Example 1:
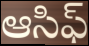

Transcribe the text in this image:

ఆసిఫ్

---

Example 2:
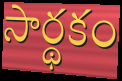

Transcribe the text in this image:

సార్థకం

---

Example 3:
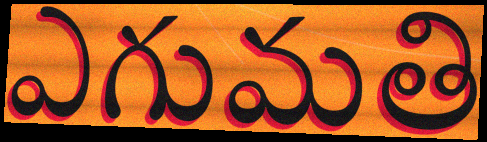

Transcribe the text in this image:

ఎగుమతి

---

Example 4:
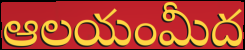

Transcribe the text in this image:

ఆలయంమీద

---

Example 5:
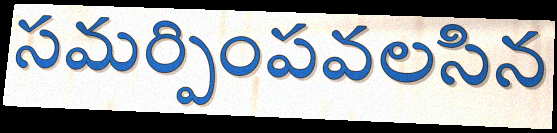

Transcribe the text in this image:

సమర్పింపవలసిన